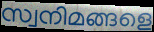
സ്വനിമങ്ങളെ